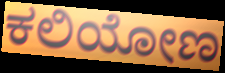
ಕಲಿಯೋಣ